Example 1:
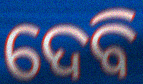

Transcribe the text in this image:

ଦେବି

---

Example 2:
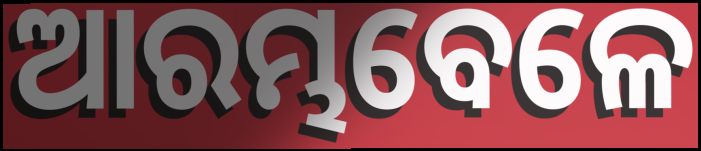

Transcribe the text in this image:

ଆରମ୍ଭବେଳେ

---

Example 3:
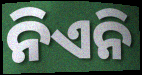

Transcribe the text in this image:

ନିଏନି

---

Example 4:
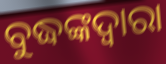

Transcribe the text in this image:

ବୁଦ୍ଧଙ୍କଦ୍ଵାରା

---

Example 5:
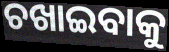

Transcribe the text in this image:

ଚଖାଇବାକୁ